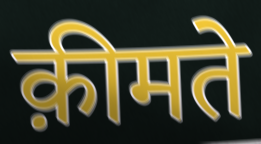
क़ीमते